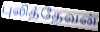
புலித்தேவன்